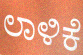
ಲಾಳಿಕೆ